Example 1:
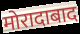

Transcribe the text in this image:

मोरादाबाद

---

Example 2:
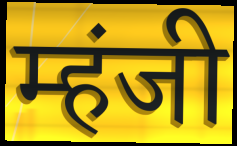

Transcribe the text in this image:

म्हंजी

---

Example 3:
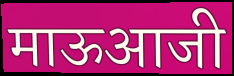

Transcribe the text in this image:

माऊआजी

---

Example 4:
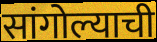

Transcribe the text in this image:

सांगोल्याची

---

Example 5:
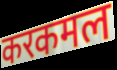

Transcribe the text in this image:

करकमल